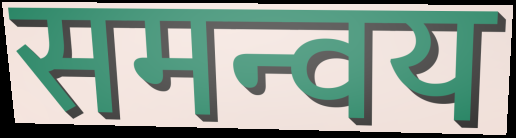
समन्वय